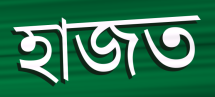
হাজত